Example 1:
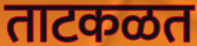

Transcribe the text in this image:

ताटकळत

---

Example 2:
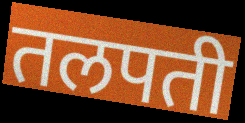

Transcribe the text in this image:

तलपती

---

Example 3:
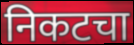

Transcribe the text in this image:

निकटचा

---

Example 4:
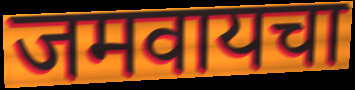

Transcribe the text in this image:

जमवायचा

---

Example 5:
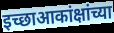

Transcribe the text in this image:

इच्छाआकांक्षांच्या